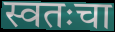
स्वतःचा